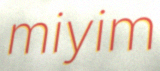
miyim